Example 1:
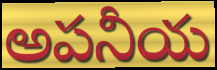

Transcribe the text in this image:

అపనీయ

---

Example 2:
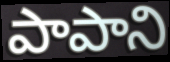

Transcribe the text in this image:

పాపాని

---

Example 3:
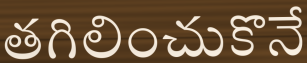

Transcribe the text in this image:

తగిలించుకొనే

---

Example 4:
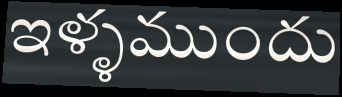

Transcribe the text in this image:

ఇళ్ళముందు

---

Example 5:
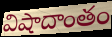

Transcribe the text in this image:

విషాదాంతం